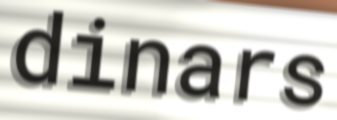
dinars